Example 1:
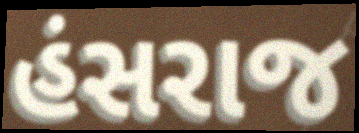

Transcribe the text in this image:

હંસરાજ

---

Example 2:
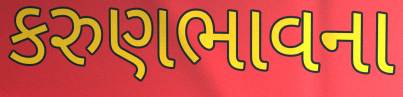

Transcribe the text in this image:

કરુણભાવના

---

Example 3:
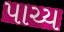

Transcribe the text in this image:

પાચ્ય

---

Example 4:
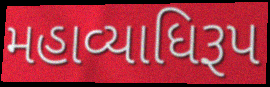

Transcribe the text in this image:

મહાવ્યાધિરૂપ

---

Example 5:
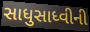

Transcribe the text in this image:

સાધુસાધ્વીની